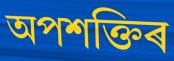
অপশক্তিৰ